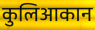
कुलिआकान